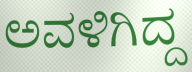
ಅವಳಿಗಿದ್ದ